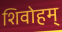
शिवोहम्